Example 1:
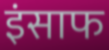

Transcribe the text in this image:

इंसाफ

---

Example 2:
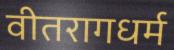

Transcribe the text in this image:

वीतरागधर्म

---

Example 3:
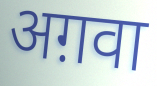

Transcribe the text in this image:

अग़वा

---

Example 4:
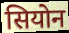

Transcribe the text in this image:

सियोन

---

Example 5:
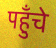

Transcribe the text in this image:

पहुँचे